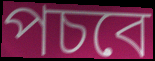
পচবে